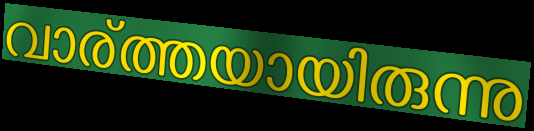
വാര്ത്തയായിരുന്നു